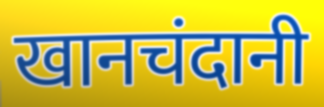
खानचंदानी